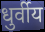
धुर्वीय